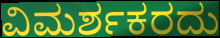
ವಿಮರ್ಶಕರದು